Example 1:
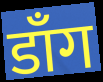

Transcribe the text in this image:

डाँग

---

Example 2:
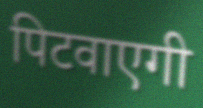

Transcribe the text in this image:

पिटवाएगी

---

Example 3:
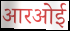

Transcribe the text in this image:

आरओई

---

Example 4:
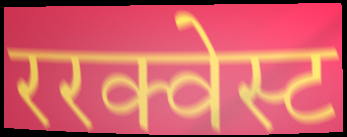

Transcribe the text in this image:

ररक्वेस्ट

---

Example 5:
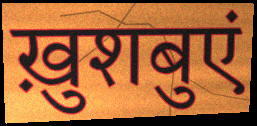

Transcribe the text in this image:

ख़ुशबुएं